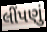
લીંપણું